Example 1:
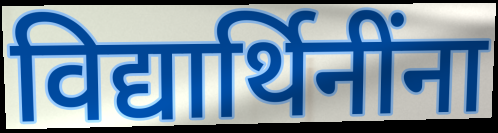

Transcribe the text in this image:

विद्यार्थिनींना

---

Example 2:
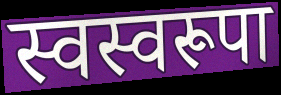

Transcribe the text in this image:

स्वस्वरूपा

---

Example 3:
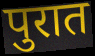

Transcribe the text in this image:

पुरात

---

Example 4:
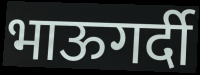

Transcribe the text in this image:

भाऊगर्दी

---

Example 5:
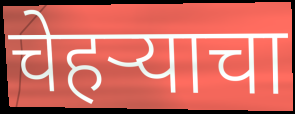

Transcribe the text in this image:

चेहर्‍याचा